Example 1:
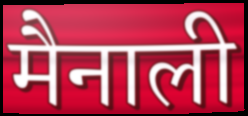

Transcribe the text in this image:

मैनाली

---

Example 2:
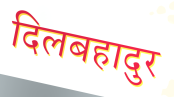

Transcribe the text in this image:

दिलबहादुर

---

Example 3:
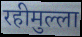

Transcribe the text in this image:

रहीमुल्ला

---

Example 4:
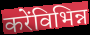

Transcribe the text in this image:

करेंविभिन्न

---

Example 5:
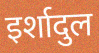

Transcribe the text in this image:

इर्शादुल